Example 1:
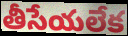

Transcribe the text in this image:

తీసేయలేక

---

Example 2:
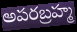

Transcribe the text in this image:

అపరబ్రహ్మ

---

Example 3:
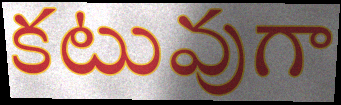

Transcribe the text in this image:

కటువుగా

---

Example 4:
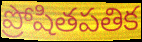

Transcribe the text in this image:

ప్రోషితపతిక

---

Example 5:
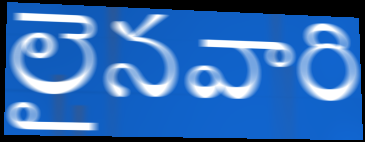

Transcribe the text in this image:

లైనవారి